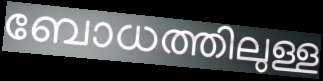
ബോധത്തിലുള്ള